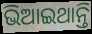
ଭିଆଇଥାନ୍ତି